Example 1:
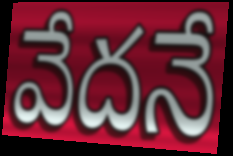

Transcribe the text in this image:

వేదనే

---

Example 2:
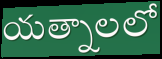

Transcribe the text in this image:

యత్నాలలో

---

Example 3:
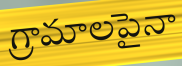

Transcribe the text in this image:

గ్రామాలపైనా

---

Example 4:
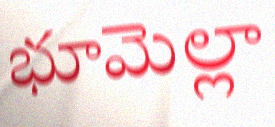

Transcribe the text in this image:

భూమెల్లా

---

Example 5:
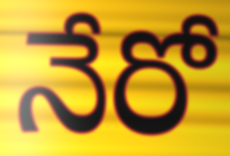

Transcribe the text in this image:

నేరో